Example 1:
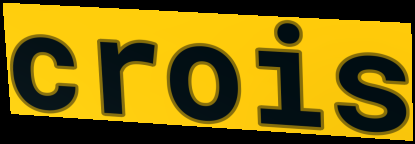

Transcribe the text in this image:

crois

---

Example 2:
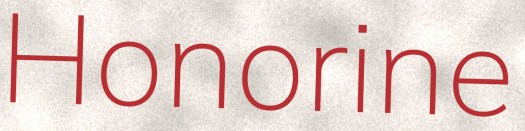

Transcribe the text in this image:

Honorine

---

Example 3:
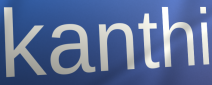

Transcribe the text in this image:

kanthi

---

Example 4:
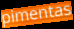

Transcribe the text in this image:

pimentas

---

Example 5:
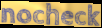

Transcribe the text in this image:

nocheck